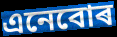
এনেবোৰ